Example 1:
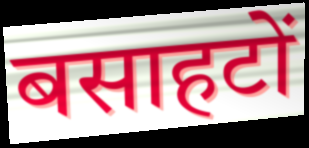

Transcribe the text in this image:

बसाहटों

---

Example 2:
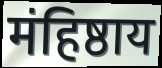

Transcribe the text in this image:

मंहिष्ठाय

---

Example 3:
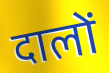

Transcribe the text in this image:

दालों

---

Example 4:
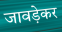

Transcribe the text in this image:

जावड़ेकर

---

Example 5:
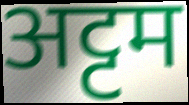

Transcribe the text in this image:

अट्टम